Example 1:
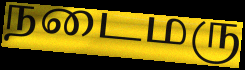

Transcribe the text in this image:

நடைமரு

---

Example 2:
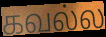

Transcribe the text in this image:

கவல்ல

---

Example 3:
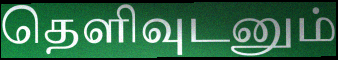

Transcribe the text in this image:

தெளிவுடனும்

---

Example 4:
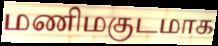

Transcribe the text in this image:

மணிமகுடமாக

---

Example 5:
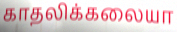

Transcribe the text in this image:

காதலிக்கலையா